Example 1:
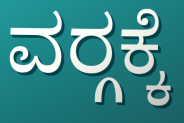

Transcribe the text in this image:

ವರ‍್ಗಕ್ಕೆ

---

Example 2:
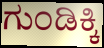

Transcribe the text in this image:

ಗುಂಡಿಕ್ಕಿ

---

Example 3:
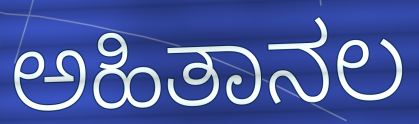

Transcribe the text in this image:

ಅಹಿತಾನಲ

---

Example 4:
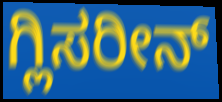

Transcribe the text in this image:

ಗ್ಲಿಸರೀನ್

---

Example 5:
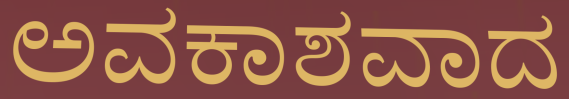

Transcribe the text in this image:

ಅವಕಾಶವಾದ